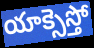
యాక్సెస్తో